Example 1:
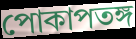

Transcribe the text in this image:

পোকাপতঙ্গ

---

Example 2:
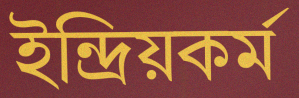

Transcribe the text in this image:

ইন্দ্রিয়কর্ম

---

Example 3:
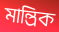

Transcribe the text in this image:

মান্ত্রিক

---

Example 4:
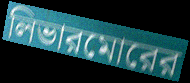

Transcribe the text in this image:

লিভারমোরের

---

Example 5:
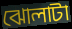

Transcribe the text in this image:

ঝোলাটা